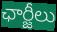
ఛార్జీలు